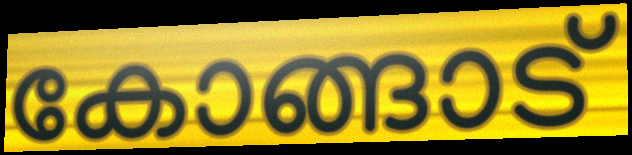
കോങ്ങാട്